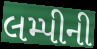
લમ્પીની